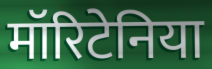
मॉरिटेनिया